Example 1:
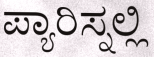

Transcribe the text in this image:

ಪ್ಯಾರಿಸ್ನಲ್ಲಿ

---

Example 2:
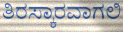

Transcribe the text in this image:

ತಿರಸ್ಕಾರವಾಗಲಿ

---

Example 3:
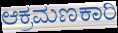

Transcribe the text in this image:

ಆಕ್ರಮಣಕಾರಿ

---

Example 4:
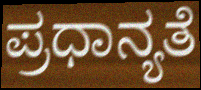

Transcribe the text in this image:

ಪ್ರಧಾನ್ಯತೆ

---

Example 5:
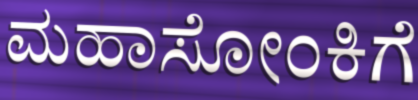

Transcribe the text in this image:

ಮಹಾಸೋಂಕಿಗೆ